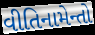
વીતિનામેન્તો